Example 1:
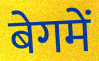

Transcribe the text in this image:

बेगमें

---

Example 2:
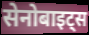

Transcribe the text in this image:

सेनोबाइट्स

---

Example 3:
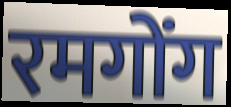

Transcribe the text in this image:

रमगोंग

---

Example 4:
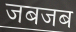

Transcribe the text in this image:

जबजब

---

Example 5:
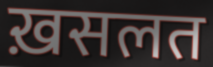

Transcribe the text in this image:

ख़सलत